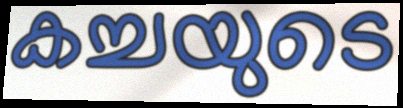
കച്ചയുടെ